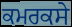
ਕਮਰਕਸੇ